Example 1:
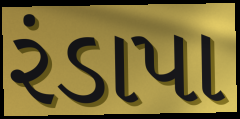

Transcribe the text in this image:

રંડાપા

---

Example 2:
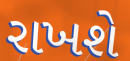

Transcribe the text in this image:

રાખશે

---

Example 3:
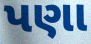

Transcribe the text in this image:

પણા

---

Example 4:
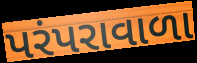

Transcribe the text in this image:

પરંપરાવાળા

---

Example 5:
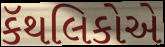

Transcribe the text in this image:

કૅથલિકોએ